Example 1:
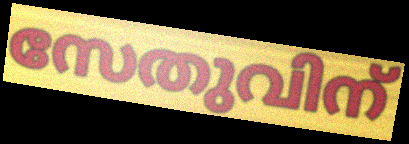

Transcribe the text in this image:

സേതുവിന്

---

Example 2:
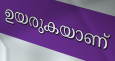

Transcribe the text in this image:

ഉയരുകയാണ്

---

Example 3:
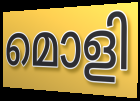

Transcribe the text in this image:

മൊളി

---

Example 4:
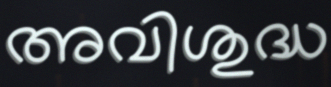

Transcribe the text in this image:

അവിശുദ്ധ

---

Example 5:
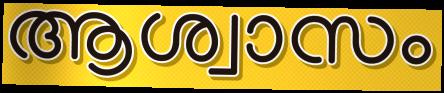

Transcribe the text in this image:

ആശ്വാസം